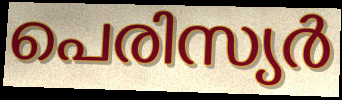
പെരിസ്യർ